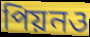
পিয়নও